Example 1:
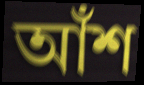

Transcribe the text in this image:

আঁশ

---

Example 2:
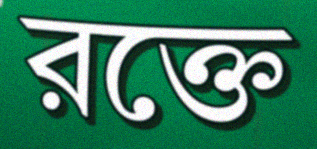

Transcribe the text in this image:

রক্তে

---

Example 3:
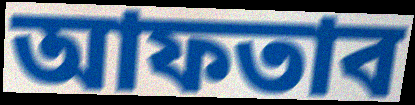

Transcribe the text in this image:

আফতাব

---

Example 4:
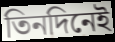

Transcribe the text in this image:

তিনদিনেই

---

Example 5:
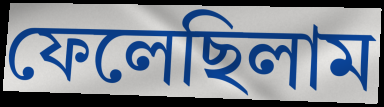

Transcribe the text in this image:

ফেলেছিলাম